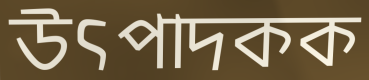
উৎপাদকক